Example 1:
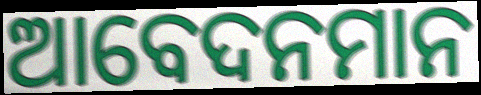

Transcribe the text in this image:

ଆବେଦନମାନ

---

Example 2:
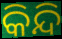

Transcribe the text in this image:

କିନ୍ଦି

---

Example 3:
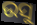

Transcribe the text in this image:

ଉସୁ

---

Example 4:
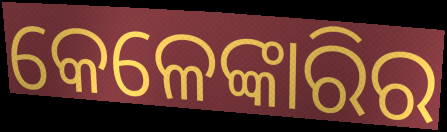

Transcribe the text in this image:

କେଳେଙ୍କାରିର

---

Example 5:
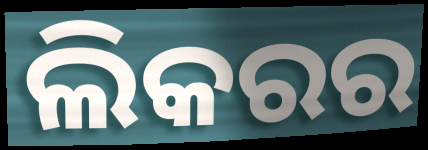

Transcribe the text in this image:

ଲିକରର